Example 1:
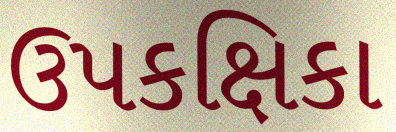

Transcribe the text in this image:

ઉપકક્ષિકા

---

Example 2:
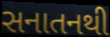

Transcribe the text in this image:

સનાતનથી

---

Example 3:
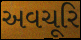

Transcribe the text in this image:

અવચૂરિ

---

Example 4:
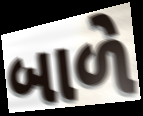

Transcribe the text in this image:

બાળે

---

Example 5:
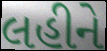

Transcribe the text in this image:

લહીને